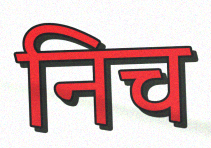
निच